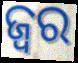
ଜ୍ବର